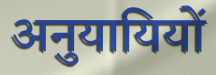
अनुयायियों